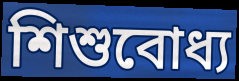
শিশুবোধ্য